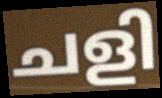
ചളി